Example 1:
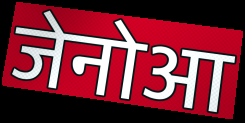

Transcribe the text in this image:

जेनोआ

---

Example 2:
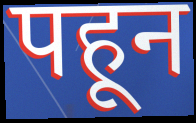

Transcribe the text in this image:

पहून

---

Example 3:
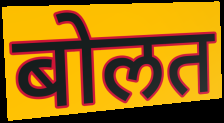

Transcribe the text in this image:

बोलत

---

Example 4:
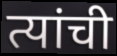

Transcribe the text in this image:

त्यांची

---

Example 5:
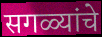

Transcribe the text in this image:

सगळ्यांचे